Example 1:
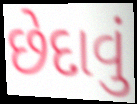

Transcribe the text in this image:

છેદાવું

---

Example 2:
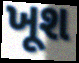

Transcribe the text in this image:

ખૂશ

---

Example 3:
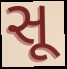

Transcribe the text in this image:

સૂ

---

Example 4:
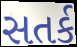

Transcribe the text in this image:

સતર્ક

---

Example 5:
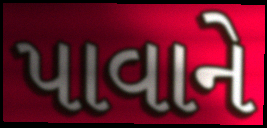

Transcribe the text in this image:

પાવાને